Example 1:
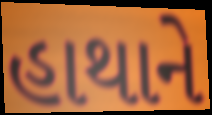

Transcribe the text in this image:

હાથાને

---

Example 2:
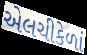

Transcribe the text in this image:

એલચીકેળાં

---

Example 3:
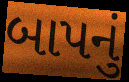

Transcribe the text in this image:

બાપનું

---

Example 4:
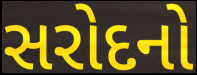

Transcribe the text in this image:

સરોદનો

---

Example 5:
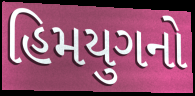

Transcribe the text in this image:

હિમયુગનો